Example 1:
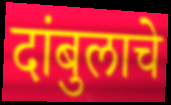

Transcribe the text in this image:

दांबुलाचे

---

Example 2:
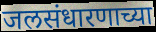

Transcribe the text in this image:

जलसंधारणाच्या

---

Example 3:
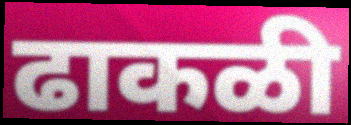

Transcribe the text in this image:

ढाकळी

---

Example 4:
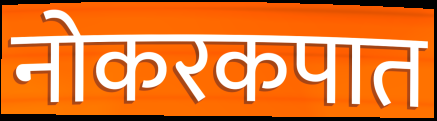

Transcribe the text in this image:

नोकरकपात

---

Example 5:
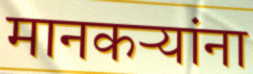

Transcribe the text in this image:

मानकऱ्यांना